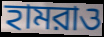
হামরাও